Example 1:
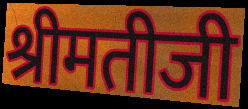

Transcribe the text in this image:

श्रीमतीजी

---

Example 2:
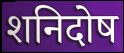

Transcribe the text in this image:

शनिदोष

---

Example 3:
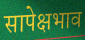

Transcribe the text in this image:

सापेक्षभाव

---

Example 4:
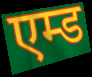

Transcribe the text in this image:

एम्ड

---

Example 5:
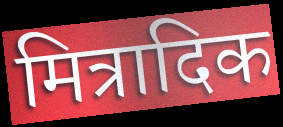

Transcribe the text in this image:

मित्रादिक